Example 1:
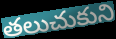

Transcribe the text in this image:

తలుచుకుని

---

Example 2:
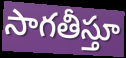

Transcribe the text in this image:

సాగతీస్తూ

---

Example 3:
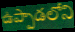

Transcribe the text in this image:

ఉప్పాడలోని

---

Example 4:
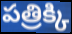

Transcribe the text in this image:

పత్రిక్కి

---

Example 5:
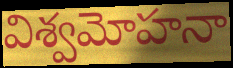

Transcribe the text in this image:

విశ్వమోహనా